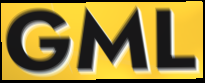
GML